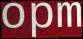
opm